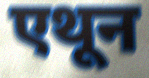
एथून